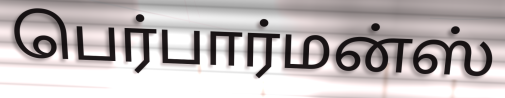
பெர்பார்மன்ஸ்